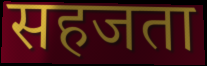
सहजता